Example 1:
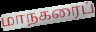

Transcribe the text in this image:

மாநகரைப்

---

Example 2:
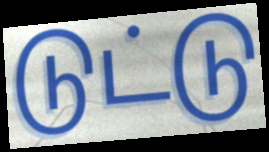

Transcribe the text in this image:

டுட்டு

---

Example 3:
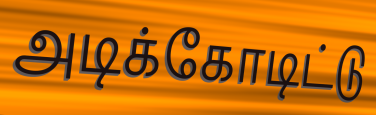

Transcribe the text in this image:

அடிக்கோடிட்டு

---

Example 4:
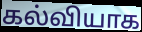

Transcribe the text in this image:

கல்வியாக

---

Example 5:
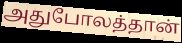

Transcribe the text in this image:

அதுபோலத்தான்